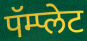
पॅम्प्लेट